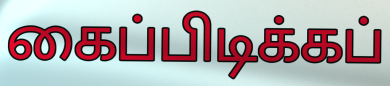
கைப்பிடிக்கப்